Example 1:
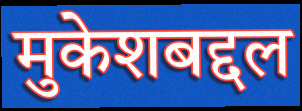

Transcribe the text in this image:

मुकेशबद्दल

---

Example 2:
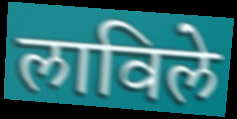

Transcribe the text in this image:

लाविले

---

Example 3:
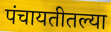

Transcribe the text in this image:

पंचायतीतल्या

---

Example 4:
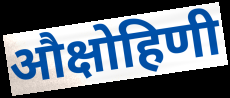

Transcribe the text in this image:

औक्षोहिणी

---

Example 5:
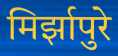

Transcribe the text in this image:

मिर्झापुरे